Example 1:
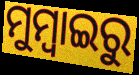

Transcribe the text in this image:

ମୁମ୍ବାଇରୁ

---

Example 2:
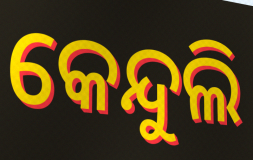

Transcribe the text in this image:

କେନ୍ଦୁଲି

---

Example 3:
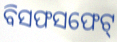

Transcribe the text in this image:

ବିସଫସଫେଟ୍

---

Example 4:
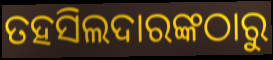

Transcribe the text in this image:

ତହସିଲଦାରଙ୍କଠାରୁ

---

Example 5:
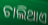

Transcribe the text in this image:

ଚାଲିଥାଏ